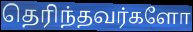
தெரிந்தவர்களோ